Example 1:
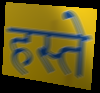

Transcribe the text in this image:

हस्ते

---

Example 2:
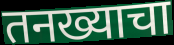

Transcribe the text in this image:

तनख्याचा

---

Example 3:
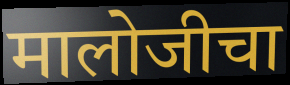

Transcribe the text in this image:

मालोजीचा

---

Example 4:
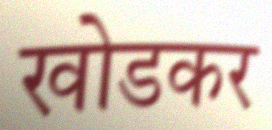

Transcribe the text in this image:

खोडकर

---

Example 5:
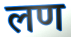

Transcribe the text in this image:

लण